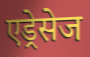
एड्रेसेज